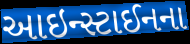
આઇન્સ્ટાઈનના